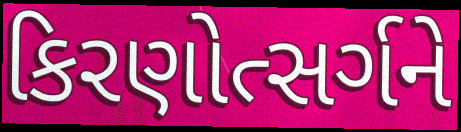
કિરણોત્સર્ગને